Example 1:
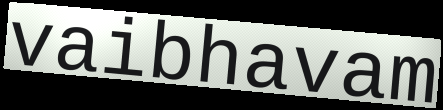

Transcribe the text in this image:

vaibhavam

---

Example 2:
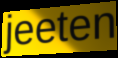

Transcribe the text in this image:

jeeten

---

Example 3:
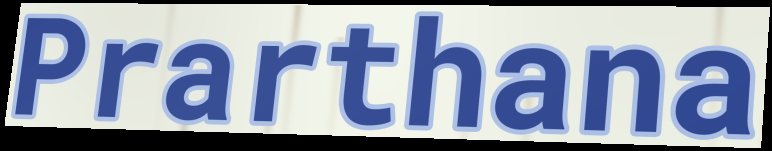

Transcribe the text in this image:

Prarthana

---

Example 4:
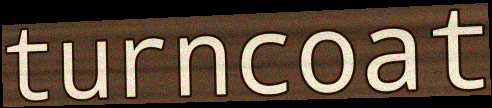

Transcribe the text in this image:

turncoat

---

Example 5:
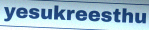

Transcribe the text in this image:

yesukreesthu